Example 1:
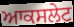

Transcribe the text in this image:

ਆਕਸਲੇਟ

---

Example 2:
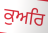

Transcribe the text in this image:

ਕੁਅਰਿ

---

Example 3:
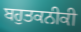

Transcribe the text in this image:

ਬਹੁਤਕਨੀਕੀ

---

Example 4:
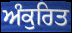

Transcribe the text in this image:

ਅੰਕੁਰਿਤ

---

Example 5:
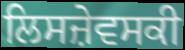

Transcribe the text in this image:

ਲਿਸਜ਼ੇਵਸਕੀ